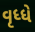
વૃધ્ધે